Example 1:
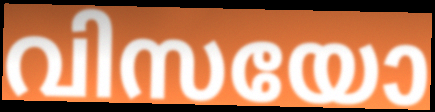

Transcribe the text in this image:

വിസയോ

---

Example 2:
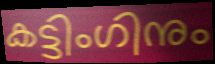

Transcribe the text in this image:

കട്ടിംഗിനും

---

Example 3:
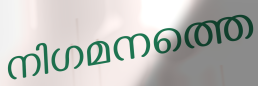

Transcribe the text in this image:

നിഗമനത്തെ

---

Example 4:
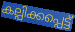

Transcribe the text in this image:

കല്പിക്കപ്പെട്ട്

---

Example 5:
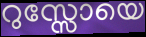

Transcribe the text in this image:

റുസ്സോയെ